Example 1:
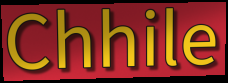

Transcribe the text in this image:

Chhile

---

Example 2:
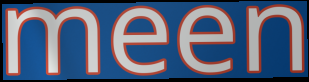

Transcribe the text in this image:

meen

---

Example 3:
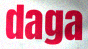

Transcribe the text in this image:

daga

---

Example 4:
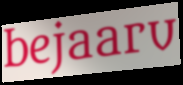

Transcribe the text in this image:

bejaaru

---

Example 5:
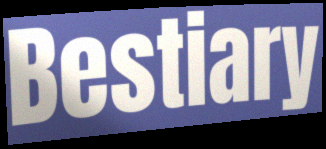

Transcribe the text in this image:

Bestiary